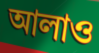
আলাও